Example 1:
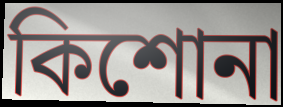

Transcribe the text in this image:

কিশোনা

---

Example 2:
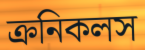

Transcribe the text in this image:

ক্রনিকলস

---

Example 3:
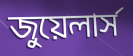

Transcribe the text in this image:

জুয়েলার্স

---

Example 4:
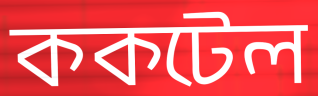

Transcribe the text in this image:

ককটেল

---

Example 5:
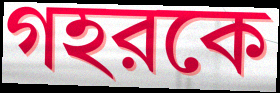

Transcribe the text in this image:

গহরকে